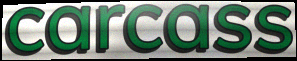
carcass